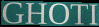
GHOTI